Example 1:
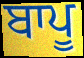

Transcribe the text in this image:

ਬਾਪੂ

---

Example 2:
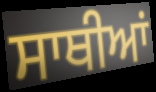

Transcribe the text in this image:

ਸਾਥੀਆਂ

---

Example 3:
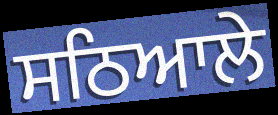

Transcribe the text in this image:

ਸਠਿਆਲੇ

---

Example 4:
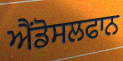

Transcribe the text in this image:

ਐਂਡੋਸਲਫਾਨ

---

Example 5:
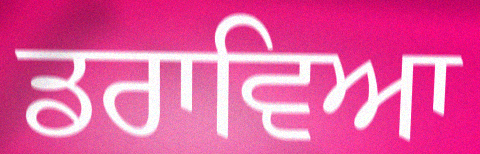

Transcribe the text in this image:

ਡਰਾਵਿਆ